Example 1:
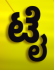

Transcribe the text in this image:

ಟೈ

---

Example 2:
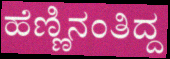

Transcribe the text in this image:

ಹೆಣ್ಣಿನಂತಿದ್ದ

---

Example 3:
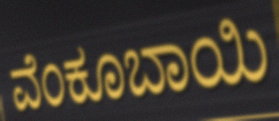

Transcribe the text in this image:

ವೆಂಕೂಬಾಯಿ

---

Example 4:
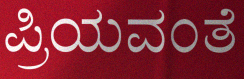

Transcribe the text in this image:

ಪ್ರಿಯವಂತೆ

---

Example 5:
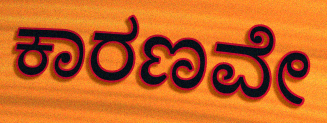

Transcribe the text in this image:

ಕಾರಣವೇ